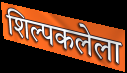
शिल्पकलेला